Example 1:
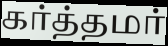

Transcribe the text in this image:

கர்த்தமர்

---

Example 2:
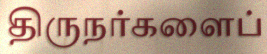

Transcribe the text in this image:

திருநர்களைப்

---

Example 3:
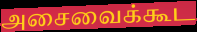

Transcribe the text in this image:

அசைவைக்கூட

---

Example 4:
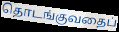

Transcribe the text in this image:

தொடங்குவதைப்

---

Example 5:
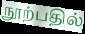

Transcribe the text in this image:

நூற்பதில்